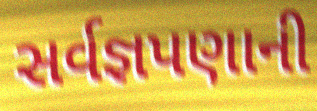
સર્વજ્ઞપણાની